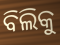
ବିଲିକୁ